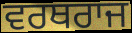
ਵਰਥਰਾਜ